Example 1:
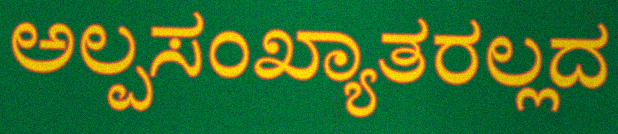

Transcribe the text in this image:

ಅಲ್ಪಸಂಖ್ಯಾತರಲ್ಲದ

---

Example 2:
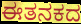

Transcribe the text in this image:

ಈತನಕದ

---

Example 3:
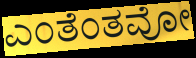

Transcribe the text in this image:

ಎಂತೆಂತವೋ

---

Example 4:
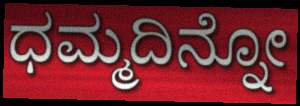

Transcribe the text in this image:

ಧಮ್ಮದಿನ್ನೋ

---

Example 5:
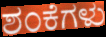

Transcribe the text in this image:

ಶಂಕೆಗಳು